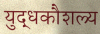
युद्धकौशल्य